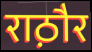
राठ़ौर